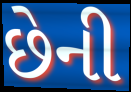
છેની